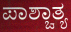
ಪಾಶ್ಚಾತ್ಯ